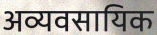
अव्यवसायिक